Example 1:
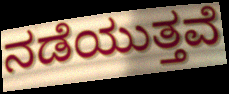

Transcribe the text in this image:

ನಡೆಯುತ್ತವೆ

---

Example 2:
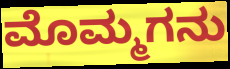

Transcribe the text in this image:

ಮೊಮ್ಮಗನು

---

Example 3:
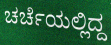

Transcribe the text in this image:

ಚರ್ಚೆಯಲ್ಲಿದ್ದ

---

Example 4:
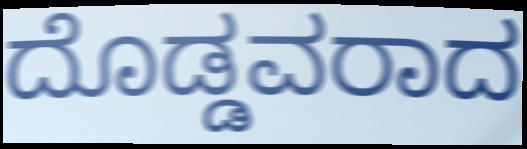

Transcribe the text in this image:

ದೊಡ್ಡವರಾದ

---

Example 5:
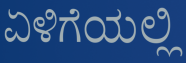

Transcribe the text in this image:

ಏಳಿಗೆಯಲ್ಲಿ